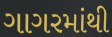
ગાગરમાંથી